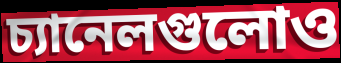
চ্যানেলগুলোও